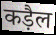
कड़ैल